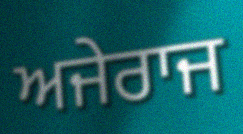
ਅਜੇਰਾਜ